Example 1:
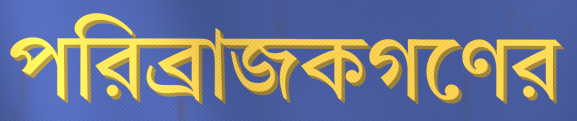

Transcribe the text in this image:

পরিব্রাজকগণের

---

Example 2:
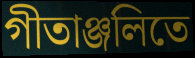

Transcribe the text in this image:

গীতাঞ্জলিতে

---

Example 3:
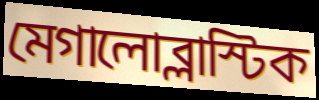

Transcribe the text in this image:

মেগালোব্লাস্টিক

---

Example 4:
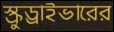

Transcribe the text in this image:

স্ক্রুড্রাইভারের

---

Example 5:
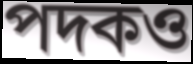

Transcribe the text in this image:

পদকও